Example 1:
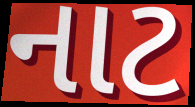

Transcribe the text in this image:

નાટ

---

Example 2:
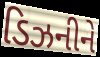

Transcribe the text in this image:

ડિઝનીને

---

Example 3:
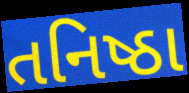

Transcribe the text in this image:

તનિષ્ઠા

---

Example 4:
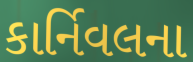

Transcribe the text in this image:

કાર્નિવલના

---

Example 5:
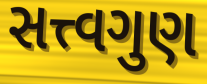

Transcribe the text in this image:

સત્ત્વગુણ